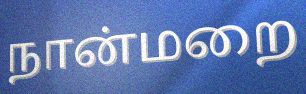
நான்மறை